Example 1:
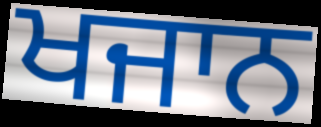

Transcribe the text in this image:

ਖਜਾਨ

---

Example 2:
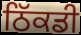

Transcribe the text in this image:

ਠਿੱਕਡੀ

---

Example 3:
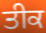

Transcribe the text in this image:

ਤੀਕ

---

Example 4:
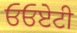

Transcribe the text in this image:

ਓਓਏਟੀ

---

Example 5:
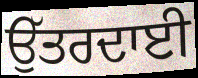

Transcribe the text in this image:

ਉੱਤਰਦਾਈ